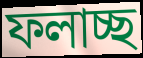
ফলাচ্ছ